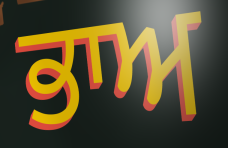
ਭਾਅ